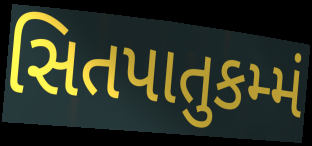
સિતપાતુકમ્મં